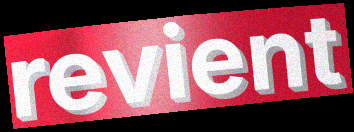
revient